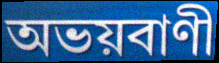
অভয়বাণী